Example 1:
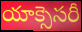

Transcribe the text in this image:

యాక్సెసరీ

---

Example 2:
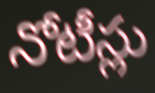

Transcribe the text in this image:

నోటీస్లు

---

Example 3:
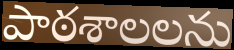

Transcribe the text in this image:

పాఠశాలలను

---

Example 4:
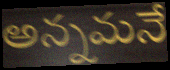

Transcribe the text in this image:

అన్నమనే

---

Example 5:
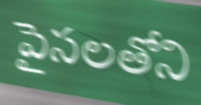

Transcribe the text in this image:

పైసలతోని